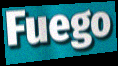
Fuego